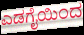
ಎಡಗೈಯಿಂದ